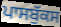
ਪਾਸਬੁੱਕਸ